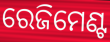
ରେଜିମେଣ୍ଟ